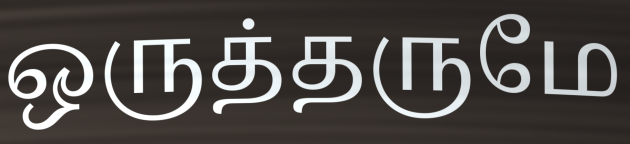
ஒருத்தருமே